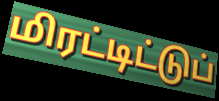
மிரட்டிட்டுப்